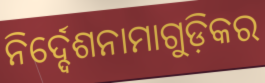
ନିର୍ଦ୍ଦେଶନାମାଗୁଡ଼ିକର